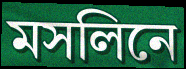
মসলিনে